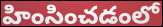
హింసించడంలో